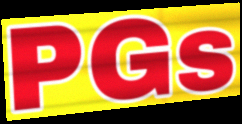
PGs